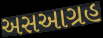
અસઆગ્રહ